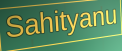
Sahityanu